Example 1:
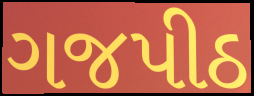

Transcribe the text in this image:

ગજપીઠ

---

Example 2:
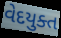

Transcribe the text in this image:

વેદયુક્ત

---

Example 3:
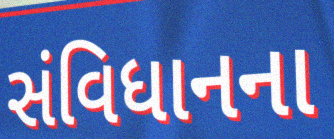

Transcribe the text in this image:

સંવિધાનના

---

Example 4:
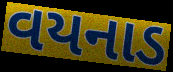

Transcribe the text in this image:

વયનાડ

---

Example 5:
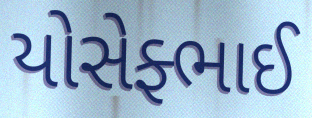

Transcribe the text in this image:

યોસેફ્ભાઈ